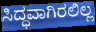
ಸಿದ್ಧವಾಗಿರಲಿಲ್ಲ